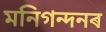
মনিগন্দনৰ